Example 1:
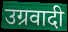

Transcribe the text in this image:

उग्रवादी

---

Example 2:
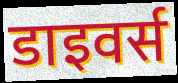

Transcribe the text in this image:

डाइवर्स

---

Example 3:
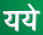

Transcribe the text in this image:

यये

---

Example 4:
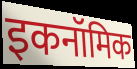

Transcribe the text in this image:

इकनॉमिक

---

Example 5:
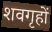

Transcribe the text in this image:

शवगृहों